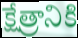
క్షేత్రానికి